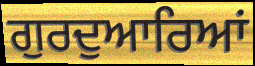
ਗੁਰਦੁਆਰਿਆਂ